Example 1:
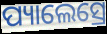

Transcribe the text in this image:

ପ୍ୟାଲେସ୍ରେ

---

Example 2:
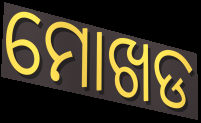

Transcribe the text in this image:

ମୋଖଡ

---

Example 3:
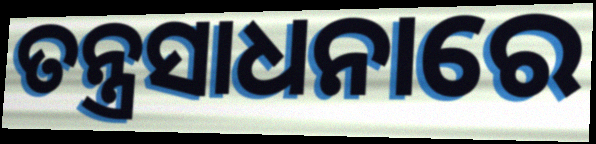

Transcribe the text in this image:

ତନ୍ତ୍ରସାଧନାରେ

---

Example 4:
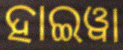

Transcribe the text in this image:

ହାଇୱା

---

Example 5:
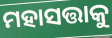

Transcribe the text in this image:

ମହାସତ୍ତାକୁ